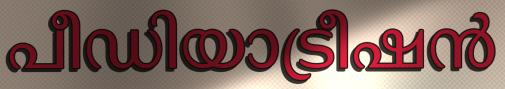
പീഡിയാട്രീഷൻ